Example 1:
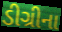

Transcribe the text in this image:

ડીગ્રીના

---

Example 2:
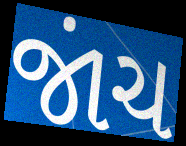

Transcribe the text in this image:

જાંચ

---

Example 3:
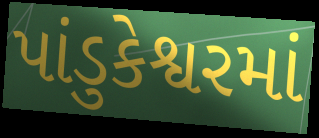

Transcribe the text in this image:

પાંડુકેશ્વરમાં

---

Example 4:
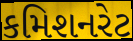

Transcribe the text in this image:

કમિશનરેટ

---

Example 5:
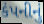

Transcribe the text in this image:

કંપનીનું